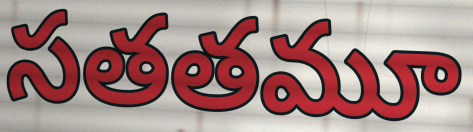
సతతమూ